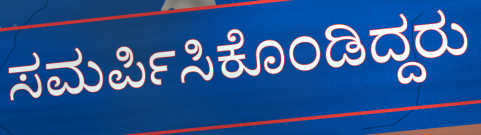
ಸಮರ್ಪಿಸಿಕೊಂಡಿದ್ದರು